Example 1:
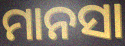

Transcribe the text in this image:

ମାନସା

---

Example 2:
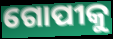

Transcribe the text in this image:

ଗୋପୀକୁ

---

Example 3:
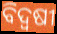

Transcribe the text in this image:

ବିଦ୍ୱଷୀ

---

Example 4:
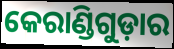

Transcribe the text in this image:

କେରାଣ୍ଡିଗୁଡ଼ାର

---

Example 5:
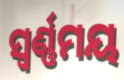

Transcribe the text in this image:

ସ୍ଵର୍ଣ୍ଣମୟ